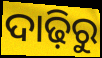
ଦାଢ଼ିରୁ